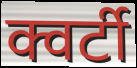
क्वर्टी